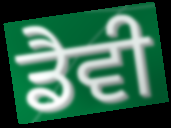
ਡੈਵੀ